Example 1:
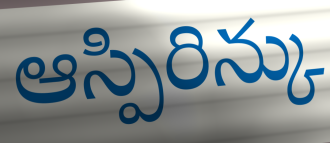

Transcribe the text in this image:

ఆస్పిరిన్కు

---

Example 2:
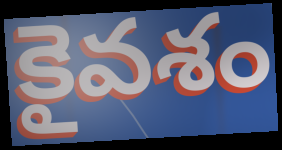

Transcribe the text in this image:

కైవశం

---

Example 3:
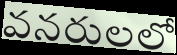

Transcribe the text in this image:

వనరులలో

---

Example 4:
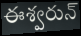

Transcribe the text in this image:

ఈశ్వరున్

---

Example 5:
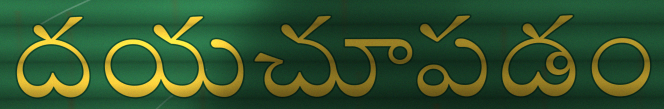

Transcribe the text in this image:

దయచూపడం